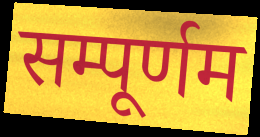
सम्पूर्णम